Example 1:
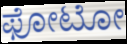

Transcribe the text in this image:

ಫೋಟೋ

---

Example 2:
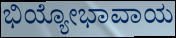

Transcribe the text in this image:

ಭಿಯ್ಯೋಭಾವಾಯ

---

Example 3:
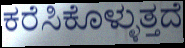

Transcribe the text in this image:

ಕರೆಸಿಕೊಳ್ಳುತ್ತದೆ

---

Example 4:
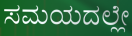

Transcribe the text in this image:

ಸಮಯದಲ್ಲೇ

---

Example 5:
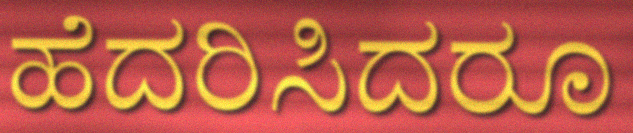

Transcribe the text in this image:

ಹೆದರಿಸಿದರೂ